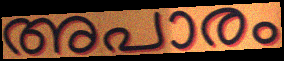
അപാരം